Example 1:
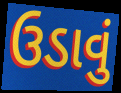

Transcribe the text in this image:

ઉડાવું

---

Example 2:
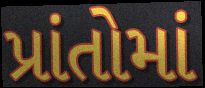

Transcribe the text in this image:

પ્રાંતોમાં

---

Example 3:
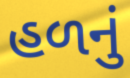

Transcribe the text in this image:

હળનું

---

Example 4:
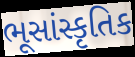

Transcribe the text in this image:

ભૂસાંસ્કૃતિક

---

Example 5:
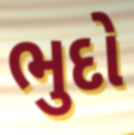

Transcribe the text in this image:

ભુદો